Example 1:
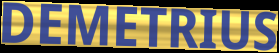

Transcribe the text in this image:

DEMETRIUS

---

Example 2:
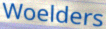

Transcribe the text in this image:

Woelders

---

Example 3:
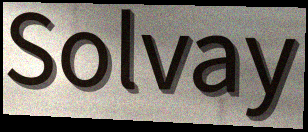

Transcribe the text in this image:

Solvay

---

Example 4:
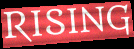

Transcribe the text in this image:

RISING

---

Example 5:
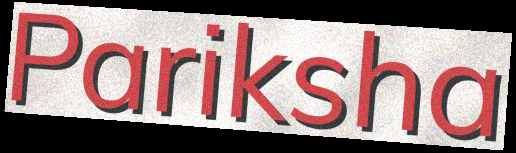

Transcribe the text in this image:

Pariksha